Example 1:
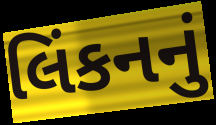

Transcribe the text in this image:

લિંકનનું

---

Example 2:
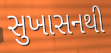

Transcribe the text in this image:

સુખાસનથી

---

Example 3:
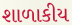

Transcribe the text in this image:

શાળાકીય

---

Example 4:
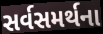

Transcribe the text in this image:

સર્વસમર્થના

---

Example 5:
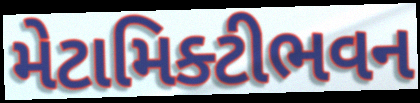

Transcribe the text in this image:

મેટામિક્ટીભવન